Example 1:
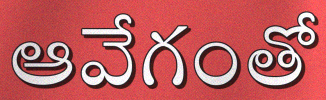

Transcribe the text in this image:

ఆవేగంతో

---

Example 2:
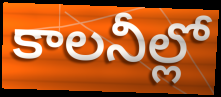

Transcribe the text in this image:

కాలనీల్లో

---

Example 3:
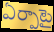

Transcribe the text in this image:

ఏర్పాటై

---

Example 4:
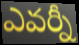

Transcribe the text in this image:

ఎవర్నీ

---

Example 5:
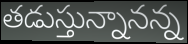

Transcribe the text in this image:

తడుస్తున్నానన్న